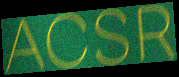
ACSR